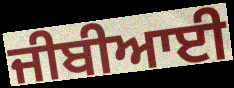
ਜੀਬੀਆਈ